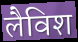
लैविश